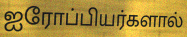
ஐரோப்பியர்களால்